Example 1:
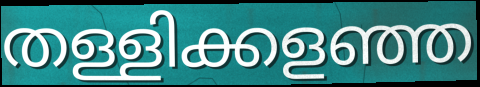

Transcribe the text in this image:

തള്ളിക്കളഞ്ഞ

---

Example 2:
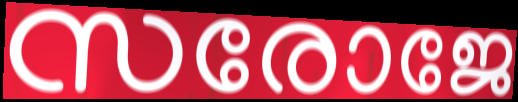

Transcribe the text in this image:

സരോജേ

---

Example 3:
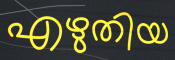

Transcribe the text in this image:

എഴുതിയ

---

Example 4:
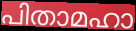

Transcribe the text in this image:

പിതാമഹാ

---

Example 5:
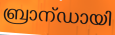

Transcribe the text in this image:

ബ്രാന്ഡായി